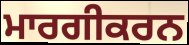
ਮਾਰਗੀਕਰਨ